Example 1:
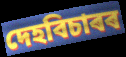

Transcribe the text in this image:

দেহবিচাৰৰ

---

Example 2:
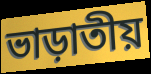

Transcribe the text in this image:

ভাড়াতীয়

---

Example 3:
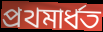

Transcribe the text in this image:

প্ৰথমাৰ্ধত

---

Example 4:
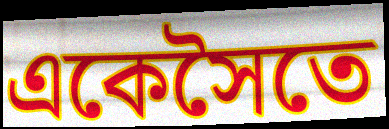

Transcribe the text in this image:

একেসৈতে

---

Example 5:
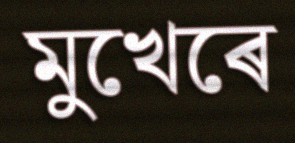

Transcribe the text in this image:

মুখেৰে